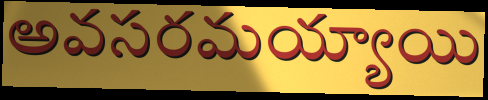
అవసరమయ్యాయి